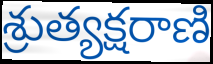
శ్రుత్యక్షరాణి